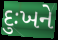
દુઃખને